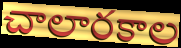
చాలారకాల